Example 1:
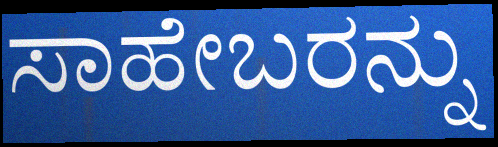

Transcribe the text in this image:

ಸಾಹೇಬರನ್ನು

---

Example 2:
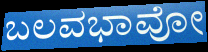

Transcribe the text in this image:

ಬಲವಭಾವೋ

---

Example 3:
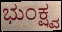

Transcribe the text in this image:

ಭುಂಕ್ಷ್ವ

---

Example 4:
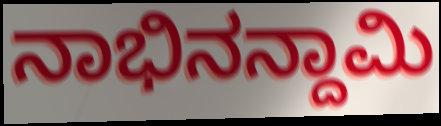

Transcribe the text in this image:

ನಾಭಿನನ್ದಾಮಿ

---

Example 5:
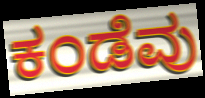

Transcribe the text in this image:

ಕಂಡೆವು